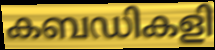
കബഡികളി